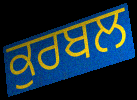
ਕੁਰਬਲ